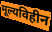
मूल्यविहीन